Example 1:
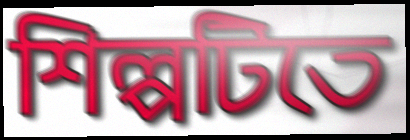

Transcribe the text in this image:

শিল্পটিতে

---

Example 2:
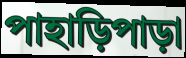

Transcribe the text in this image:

পাহাড়িপাড়া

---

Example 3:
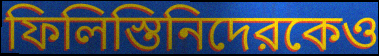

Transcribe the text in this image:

ফিলিস্তিনিদেরকেও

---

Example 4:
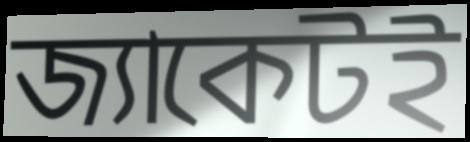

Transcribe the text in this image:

জ্যাকেটই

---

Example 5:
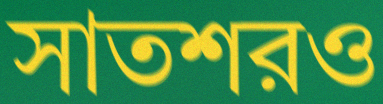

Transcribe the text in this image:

সাতশরও